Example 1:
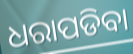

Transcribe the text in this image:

ଧରାପଡିବା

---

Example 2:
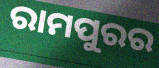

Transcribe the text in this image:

ରାମପୁରର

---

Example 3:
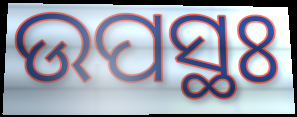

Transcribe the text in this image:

ଉପସ୍ଥଃ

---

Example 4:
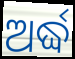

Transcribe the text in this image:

ଅର୍ଦ୍ଧ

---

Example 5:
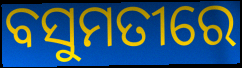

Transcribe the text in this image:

ବସୁମତୀରେ